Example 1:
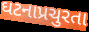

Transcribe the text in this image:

ઘટનાપ્રચુરતા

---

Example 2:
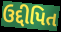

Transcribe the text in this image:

ઉદ્દીપિત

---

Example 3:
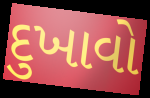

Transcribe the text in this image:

દુખાવો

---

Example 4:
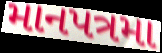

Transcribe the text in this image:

માનપત્રમા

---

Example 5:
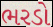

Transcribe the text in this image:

ભરડો